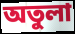
অতুলা